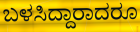
ಬಳಸಿದ್ದಾರಾದರೂ